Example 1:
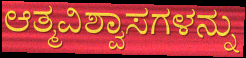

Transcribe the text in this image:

ಆತ್ಮವಿಶ್ವಾಸಗಳನ್ನು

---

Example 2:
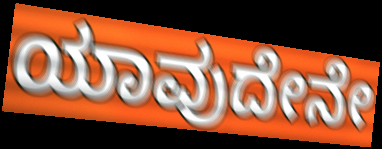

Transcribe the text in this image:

ಯಾವುದೇನೇ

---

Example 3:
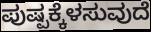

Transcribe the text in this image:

ಪುಷ್ಪಕ್ಕೆಳಸುವುದೆ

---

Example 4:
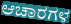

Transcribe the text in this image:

ಆಚಾರಗಳ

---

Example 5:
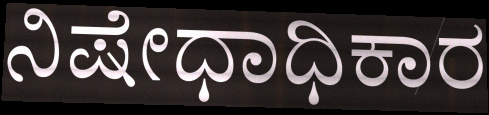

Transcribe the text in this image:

ನಿಷೇಧಾಧಿಕಾರ